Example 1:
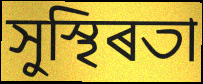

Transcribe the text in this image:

সুস্থিৰতা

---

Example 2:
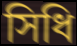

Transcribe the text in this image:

সিধি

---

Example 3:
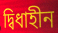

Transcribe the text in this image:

দ্বিধাহীন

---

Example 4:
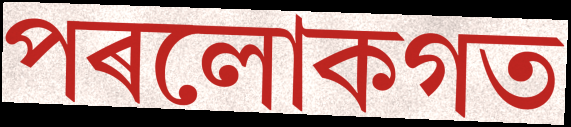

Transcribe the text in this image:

পৰলোকগত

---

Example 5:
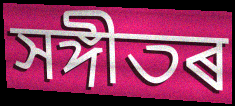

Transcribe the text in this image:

সঙ্গীতৰ